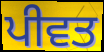
ਪੀਵਤ